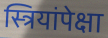
स्त्रियांपेक्षा